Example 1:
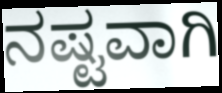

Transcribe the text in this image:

ನಷ್ಟವಾಗಿ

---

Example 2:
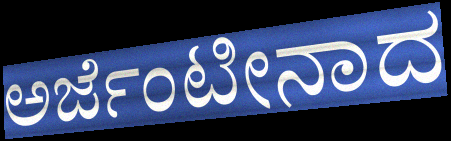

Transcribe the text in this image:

ಅರ್ಜೆಂಟೀನಾದ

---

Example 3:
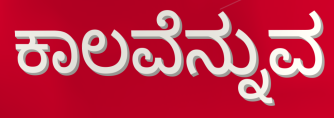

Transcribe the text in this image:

ಕಾಲವೆನ್ನುವ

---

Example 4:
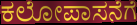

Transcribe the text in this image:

ಕಲೋಪಾಸನೆಗೆ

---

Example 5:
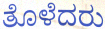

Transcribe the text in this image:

ತೊಳೆದರು